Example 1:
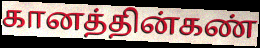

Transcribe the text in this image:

கானத்தின்கண்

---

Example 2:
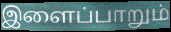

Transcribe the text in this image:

இளைப்பாறும்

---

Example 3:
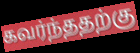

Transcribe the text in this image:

கவர்ந்ததற்கு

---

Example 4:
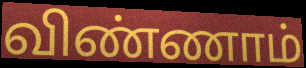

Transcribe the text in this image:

விண்ணாம்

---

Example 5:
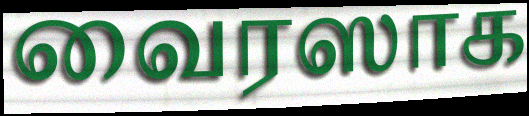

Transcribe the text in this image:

வைரஸாக